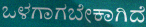
ಒಳಗಾಗಬೇಕಾಗಿದೆ